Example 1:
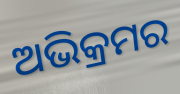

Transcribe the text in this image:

ଅଭିକ୍ରମର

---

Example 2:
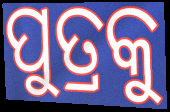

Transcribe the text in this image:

ପୁତ୍ରକୁ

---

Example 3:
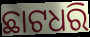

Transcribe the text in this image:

ଛାଟଧରି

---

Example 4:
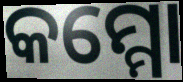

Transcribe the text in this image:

କମ୍ମୋ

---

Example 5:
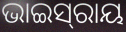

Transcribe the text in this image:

ଭାଇସ୍‍ରାୟ